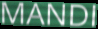
MANDI